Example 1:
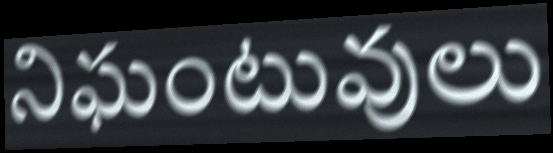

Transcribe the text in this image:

నిఘంటువులు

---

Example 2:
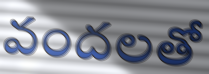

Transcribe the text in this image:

వందలతో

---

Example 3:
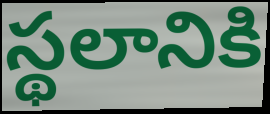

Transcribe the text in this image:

స్థలానికి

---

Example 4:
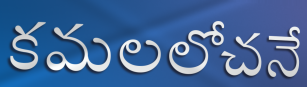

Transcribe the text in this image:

కమలలోచనే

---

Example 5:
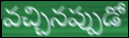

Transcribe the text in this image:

వచ్చినప్పుడో